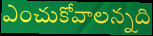
ఎంచుకోవాలన్నది